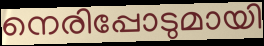
നെരിപ്പോടുമായി